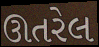
ઊતરેલ